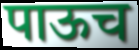
पाऊच